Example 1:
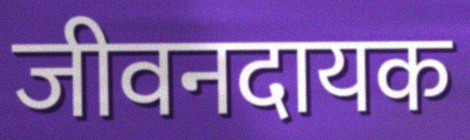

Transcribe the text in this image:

जीवनदायक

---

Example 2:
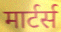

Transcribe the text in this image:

मार्टर्स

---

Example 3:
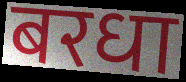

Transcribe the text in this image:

बरधा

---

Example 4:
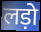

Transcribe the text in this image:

लड़ो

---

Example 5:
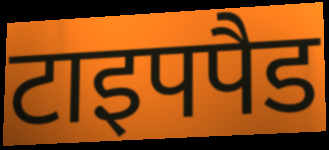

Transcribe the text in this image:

टाइपपैड